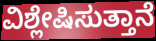
ವಿಶ್ಲೇಷಿಸುತ್ತಾನೆ